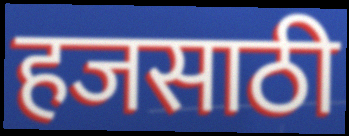
हजसाठी